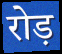
रोड़